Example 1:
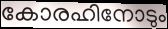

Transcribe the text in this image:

കോരഹിനോടും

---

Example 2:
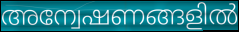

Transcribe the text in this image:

അന്വേഷണങ്ങളിൽ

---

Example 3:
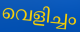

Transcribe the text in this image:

വെളിച്ചം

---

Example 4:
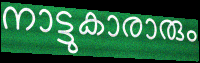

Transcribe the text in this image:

നാട്ടുകാരാരും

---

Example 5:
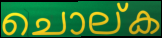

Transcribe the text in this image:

ചൊല്ക